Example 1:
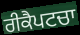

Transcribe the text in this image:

ਰੀਕੈਪਟਚਾ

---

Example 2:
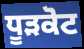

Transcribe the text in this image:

ਧੂੜਕੋਟ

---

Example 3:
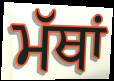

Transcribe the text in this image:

ਮੱਥਾਂ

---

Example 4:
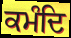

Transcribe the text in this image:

ਕਮੰਦਿ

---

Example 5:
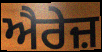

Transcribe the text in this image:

ਐਰੇਜ਼